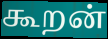
கூறன்